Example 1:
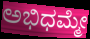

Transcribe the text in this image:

ಅಭಿಧಮ್ಮೇ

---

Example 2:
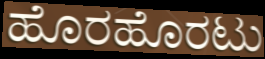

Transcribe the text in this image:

ಹೊರಹೊರಟು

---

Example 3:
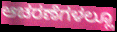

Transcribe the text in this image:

ಆಚರಣೆಗಳಲ್ಲೂ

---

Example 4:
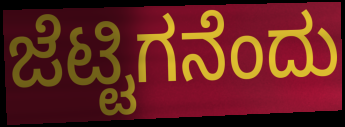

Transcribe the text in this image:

ಜೆಟ್ಟಿಗನೆಂದು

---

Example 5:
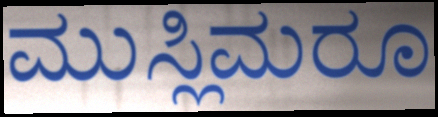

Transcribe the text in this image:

ಮುಸ್ಲಿಮರೂ